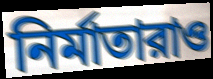
নির্মাতারাও